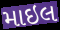
માઇલ